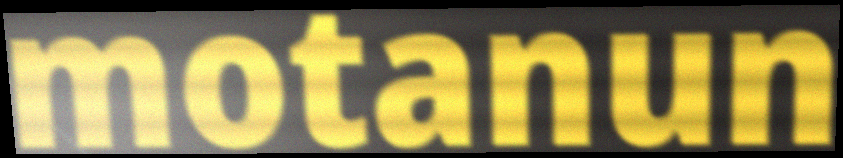
motanun